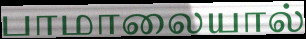
பாமாலையால்